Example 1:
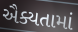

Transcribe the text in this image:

ઐક્યતામાં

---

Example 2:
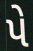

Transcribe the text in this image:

પે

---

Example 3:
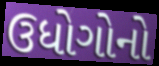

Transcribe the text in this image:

ઉધોગોનો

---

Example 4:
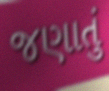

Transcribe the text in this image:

જણાતું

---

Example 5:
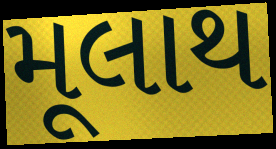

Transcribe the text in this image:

મૂલાથ